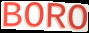
BORO